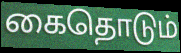
கைதொடும்